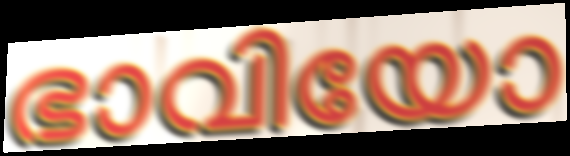
ഭാവിയോ